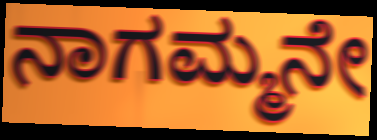
ನಾಗಮ್ಮನೇ